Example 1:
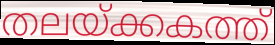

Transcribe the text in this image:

തലയ്ക്കകത്ത്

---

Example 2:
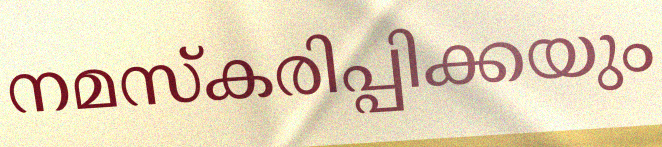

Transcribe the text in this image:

നമസ്കരിപ്പിക്കയും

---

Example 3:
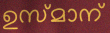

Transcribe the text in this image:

ഉസ്മാന്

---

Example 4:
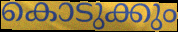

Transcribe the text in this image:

കൊടുക്കും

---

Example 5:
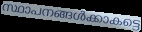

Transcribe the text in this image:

സ്ഥാപനങ്ങൾക്കാകട്ടെ